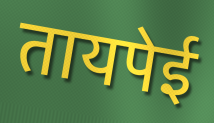
तायपेई